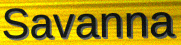
Savanna